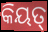
କିୟତ୍